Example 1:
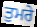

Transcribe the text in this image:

ਤੁਮਰੇ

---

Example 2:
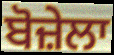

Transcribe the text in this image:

ਬੋਜ਼ੇਲਾ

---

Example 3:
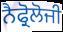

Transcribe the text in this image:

ਨੈਫ੍ਰੋਲੋਜੀ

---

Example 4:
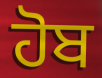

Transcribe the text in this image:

ਹੋਬ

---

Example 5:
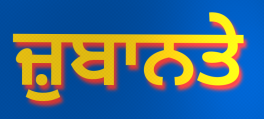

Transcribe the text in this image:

ਜ਼ੁਬਾਨਤੇ